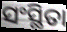
ସଂସ୍ଥିତା